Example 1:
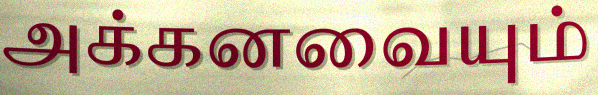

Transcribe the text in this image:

அக்கனவையும்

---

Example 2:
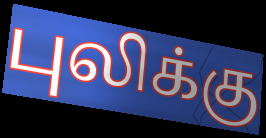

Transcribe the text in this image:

புலிக்கு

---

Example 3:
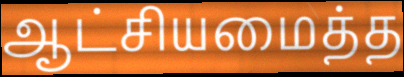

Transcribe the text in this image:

ஆட்சியமைத்த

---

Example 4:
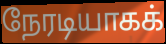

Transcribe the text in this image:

நேரடியாகக்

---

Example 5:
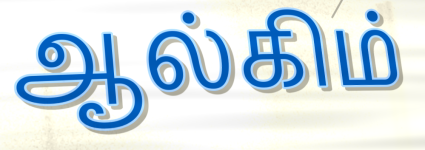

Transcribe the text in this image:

ஆல்கிம்